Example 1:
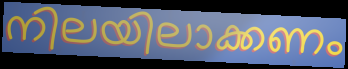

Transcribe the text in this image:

നിലയിലാക്കണം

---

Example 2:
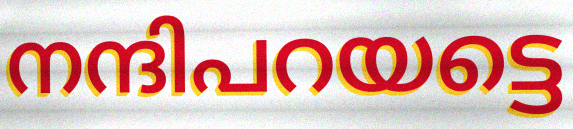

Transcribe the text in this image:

നന്ദിപറയട്ടെ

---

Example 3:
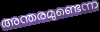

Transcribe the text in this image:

അന്തരമുണ്ടെന്ന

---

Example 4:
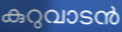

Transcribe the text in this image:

കുറുവാടൻ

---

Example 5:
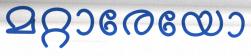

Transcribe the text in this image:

മറ്റാരേയോ